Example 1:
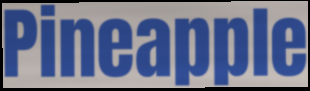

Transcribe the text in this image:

Pineapple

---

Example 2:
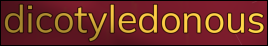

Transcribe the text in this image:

dicotyledonous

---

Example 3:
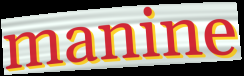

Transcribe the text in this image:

manine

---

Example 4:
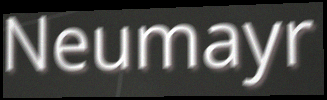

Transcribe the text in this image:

Neumayr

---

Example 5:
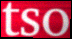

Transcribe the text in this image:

tso